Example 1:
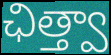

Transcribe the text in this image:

ఛిత్త్వా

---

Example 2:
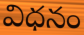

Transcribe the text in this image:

విధనం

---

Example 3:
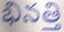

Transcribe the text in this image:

భినత్తి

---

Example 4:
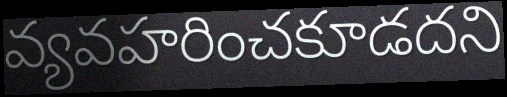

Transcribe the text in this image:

వ్యవహరించకూడదని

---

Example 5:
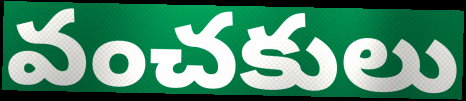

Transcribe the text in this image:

వంచకులు